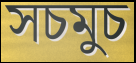
সচমুচ